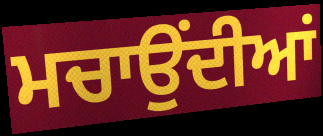
ਮਚਾਉਂਦੀਆਂ